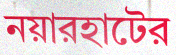
নয়ারহাটের